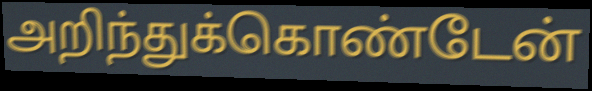
அறிந்துக்கொண்டேன்